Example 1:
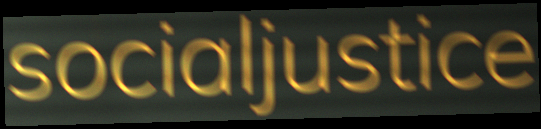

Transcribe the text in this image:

socialjustice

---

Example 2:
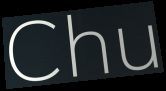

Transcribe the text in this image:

Chu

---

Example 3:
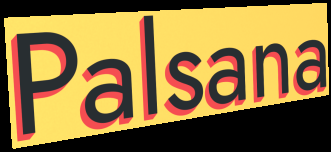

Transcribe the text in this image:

Palsana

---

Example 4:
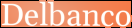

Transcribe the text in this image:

Delbanco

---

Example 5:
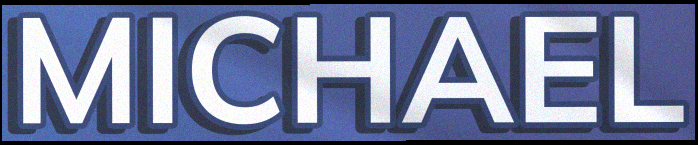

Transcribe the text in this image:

MICHAEL